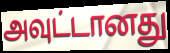
அவுட்டானது